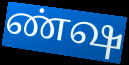
ண்ஷ